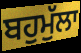
ਬਹੁਮੁੱਲਾ